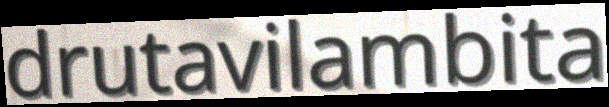
drutavilambita